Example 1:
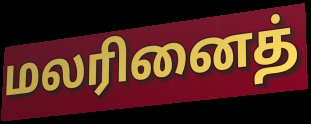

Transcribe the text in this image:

மலரினைத்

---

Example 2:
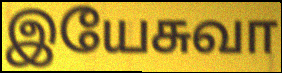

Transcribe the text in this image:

இயேசுவா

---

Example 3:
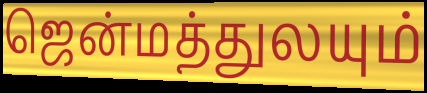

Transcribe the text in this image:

ஜென்மத்துலயும்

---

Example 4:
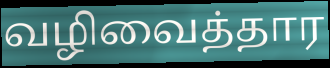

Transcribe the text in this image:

வழிவைத்தார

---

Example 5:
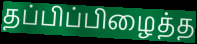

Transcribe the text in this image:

தப்பிப்பிழைத்த